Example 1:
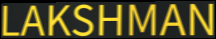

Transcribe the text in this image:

LAKSHMAN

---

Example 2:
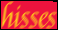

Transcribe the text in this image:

hisses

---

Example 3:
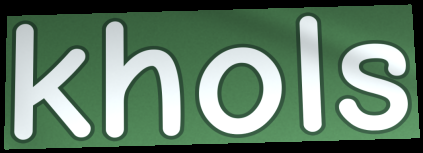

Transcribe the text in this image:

khols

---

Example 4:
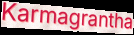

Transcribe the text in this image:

Karmagrantha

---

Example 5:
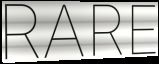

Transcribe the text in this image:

RARE